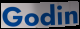
Godin